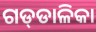
ଗଡ୍‍ଡାଳିକା